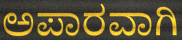
ಅಪಾರವಾಗಿ